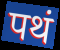
पथं